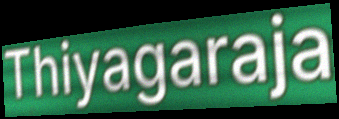
Thiyagaraja